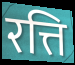
रत्ति